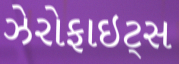
ઝેરોફાઇટ્સ